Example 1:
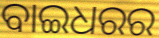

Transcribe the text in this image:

ବାଇଧରର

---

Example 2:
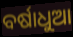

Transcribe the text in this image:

ବର୍ଷାଧୁଆ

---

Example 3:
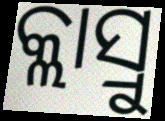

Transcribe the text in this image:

କ୍ଲାସ୍ରୁ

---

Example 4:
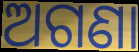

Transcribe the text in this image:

ଅଗଣା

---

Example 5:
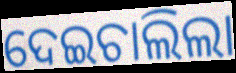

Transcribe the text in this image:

ଦେଇଚାଲିଲା